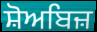
ਸ਼ੋਅਬਿਜ਼